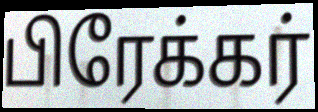
பிரேக்கர்